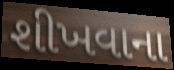
શીખવાના